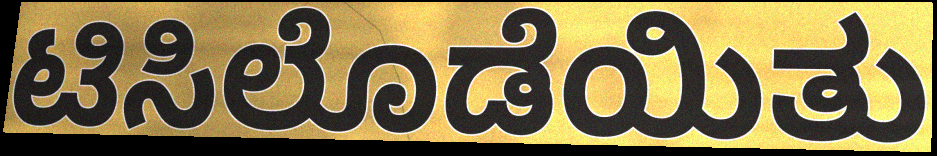
ಟಿಸಿಲೊಡೆಯಿತು